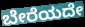
ಬೇರೆಯದೇ